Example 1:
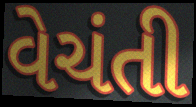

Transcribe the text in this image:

વેચંતી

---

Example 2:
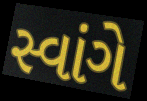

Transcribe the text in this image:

સ્વાંગે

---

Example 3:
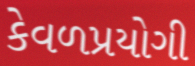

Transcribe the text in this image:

કેવળપ્રયોગી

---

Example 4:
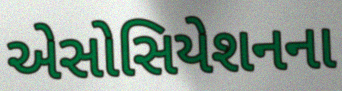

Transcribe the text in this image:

એસોસિયેશનના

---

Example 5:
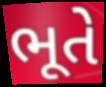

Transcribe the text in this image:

ભૂતે